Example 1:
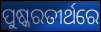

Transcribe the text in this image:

ପୁଷ୍କରତୀର୍ଥରେ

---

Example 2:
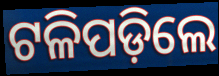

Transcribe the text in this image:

ଟଳିପଡ଼ିଲେ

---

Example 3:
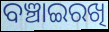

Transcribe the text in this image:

ବଞ୍ଚାଇରଖି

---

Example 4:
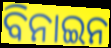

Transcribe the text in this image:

ବିନାଇନ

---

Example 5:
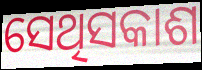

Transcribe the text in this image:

ସେଥିସକାଶ